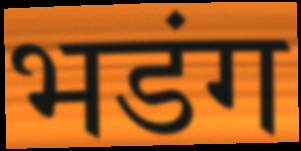
भडंग